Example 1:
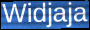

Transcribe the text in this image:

Widjaja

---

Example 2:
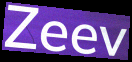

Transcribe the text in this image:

Zeev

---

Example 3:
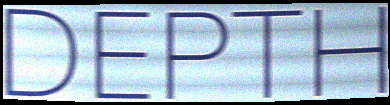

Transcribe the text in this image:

DEPTH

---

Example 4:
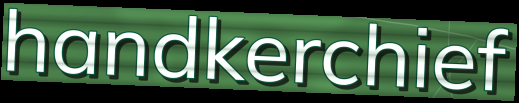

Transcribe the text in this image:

handkerchief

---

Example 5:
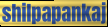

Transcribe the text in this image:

shilpapankaj